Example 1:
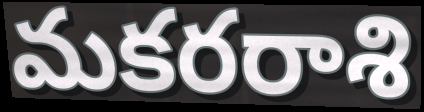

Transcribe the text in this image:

మకరరాశి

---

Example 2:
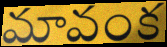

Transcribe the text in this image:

మావంక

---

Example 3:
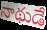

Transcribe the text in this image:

నాథుడే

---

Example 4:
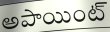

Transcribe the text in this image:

అపాయింట్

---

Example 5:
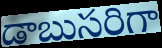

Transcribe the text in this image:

డాబుసరిగా